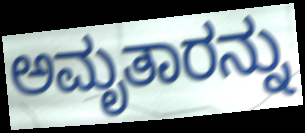
ಅಮೃತಾರನ್ನು